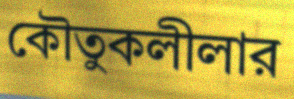
কৌতুকলীলার